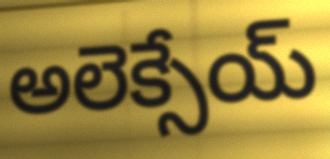
అలెక్సేయ్